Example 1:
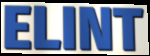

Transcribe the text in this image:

ELINT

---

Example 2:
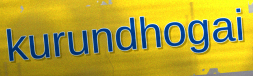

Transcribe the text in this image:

kurundhogai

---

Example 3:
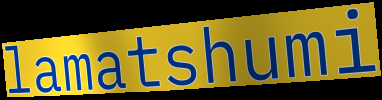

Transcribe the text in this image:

lamatshumi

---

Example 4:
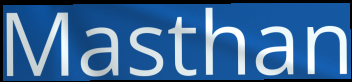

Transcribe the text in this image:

Masthan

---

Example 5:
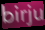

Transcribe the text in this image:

birju